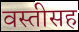
वस्तीसह